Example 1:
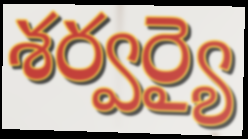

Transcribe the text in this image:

శర్వర్యై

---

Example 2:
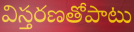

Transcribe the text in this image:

విస్తరణతోపాటు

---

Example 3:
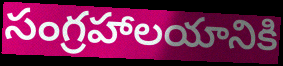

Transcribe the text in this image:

సంగ్రహాలయానికి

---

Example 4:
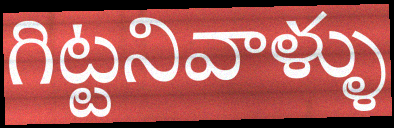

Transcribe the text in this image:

గిట్టనివాళ్ళు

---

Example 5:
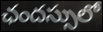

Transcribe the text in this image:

ఛందస్సులో